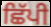
ਛਿੱਪੀ